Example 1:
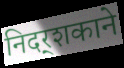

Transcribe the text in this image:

निदर्शकाने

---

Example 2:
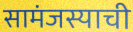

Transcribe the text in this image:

सामंजस्याची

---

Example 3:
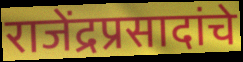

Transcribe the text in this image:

राजेंद्रप्रसादांचे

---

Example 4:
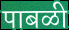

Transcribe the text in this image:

पाबळी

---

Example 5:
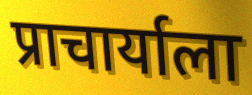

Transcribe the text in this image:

प्राचार्याला